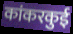
कांकरकुई